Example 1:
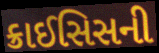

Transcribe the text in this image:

ક્રાઈસિસની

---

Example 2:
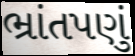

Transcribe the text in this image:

ભ્રાંતપણું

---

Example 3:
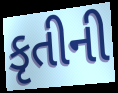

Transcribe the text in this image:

કૃતીની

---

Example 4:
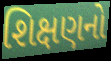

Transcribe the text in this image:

શિક્ષણનો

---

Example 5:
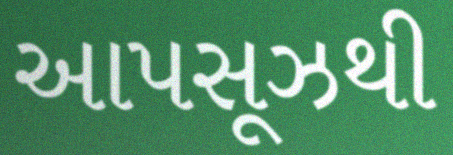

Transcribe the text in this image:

આપસૂઝથી